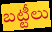
బట్టీలు